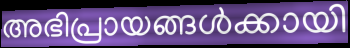
അഭിപ്രായങ്ങൾക്കായി